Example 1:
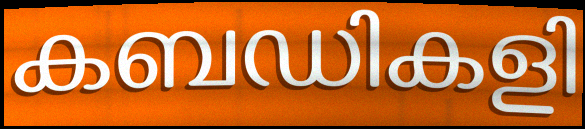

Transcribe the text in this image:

കബഡികളി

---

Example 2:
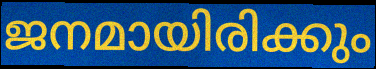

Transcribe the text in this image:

ജനമായിരിക്കും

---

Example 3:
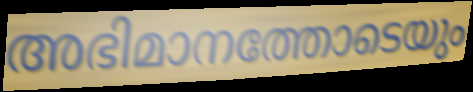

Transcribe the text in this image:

അഭിമാനത്തോടെയും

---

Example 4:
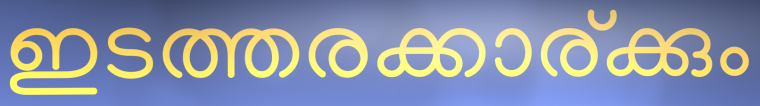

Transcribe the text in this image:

ഇടത്തരക്കാര്ക്കും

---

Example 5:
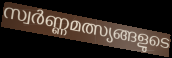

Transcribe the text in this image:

സ്വർണ്ണമത്സ്യങ്ങളുടെ